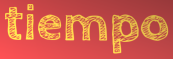
tiempo